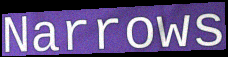
Narrows